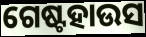
ଗେଷ୍ଟହାଉସ